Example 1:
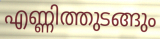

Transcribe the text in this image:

എണ്ണിത്തുടങ്ങും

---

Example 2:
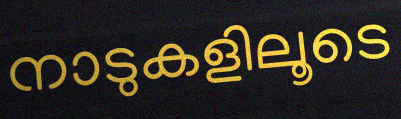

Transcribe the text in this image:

നാടുകളിലൂടെ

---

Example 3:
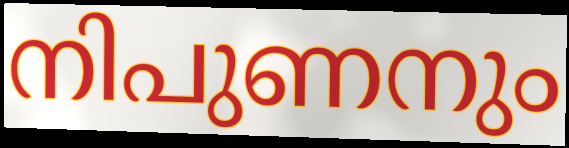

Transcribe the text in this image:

നിപുണനും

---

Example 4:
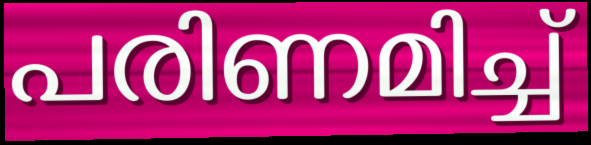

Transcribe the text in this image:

പരിണമിച്ച്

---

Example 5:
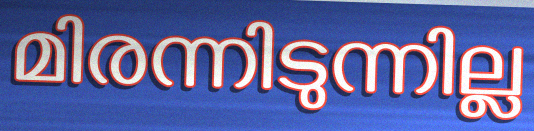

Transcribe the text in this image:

മിരന്നിടുന്നില്ല